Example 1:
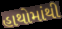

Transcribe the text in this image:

હાથોમાંથી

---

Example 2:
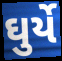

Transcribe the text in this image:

ઘુર્યે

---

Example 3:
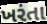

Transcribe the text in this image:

ખરંતા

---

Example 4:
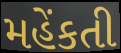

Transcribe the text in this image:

મહેંકતી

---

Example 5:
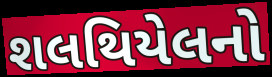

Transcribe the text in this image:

શલથિયેલનો